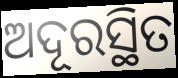
ଅଦୂରସ୍ଥିତ